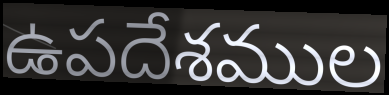
ఉపదేశముల